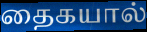
தைகயால்